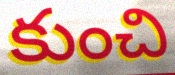
కుంచి